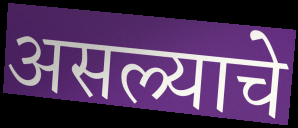
असल्याचे